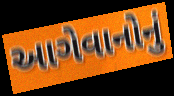
આગેવાનોનું